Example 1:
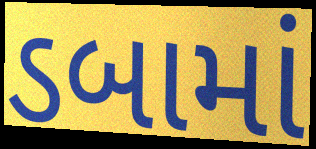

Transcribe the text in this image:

ડબામાં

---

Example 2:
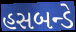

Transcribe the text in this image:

હસબન્ડે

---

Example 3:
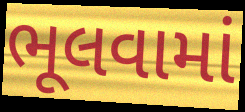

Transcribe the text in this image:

ભૂલવામાં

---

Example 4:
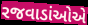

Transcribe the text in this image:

રજવાડાંઓએ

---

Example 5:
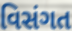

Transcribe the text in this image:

વિસંગત